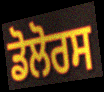
ਡੋਲੋਰਸ